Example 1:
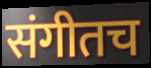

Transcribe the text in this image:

संगीतच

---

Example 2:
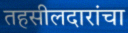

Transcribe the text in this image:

तहसीलदारांचा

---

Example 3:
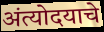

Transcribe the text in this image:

अंत्योदयाचे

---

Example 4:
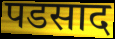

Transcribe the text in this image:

पडसाद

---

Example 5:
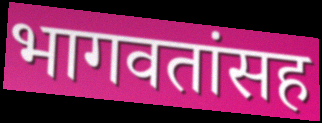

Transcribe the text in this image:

भागवतांसह